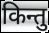
किन्तु